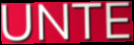
UNTE